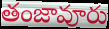
తంజావూరు